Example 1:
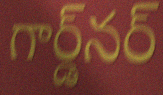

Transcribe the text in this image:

గార్డ్‌నర్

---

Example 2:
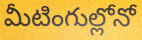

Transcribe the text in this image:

మీటింగుల్లోనో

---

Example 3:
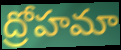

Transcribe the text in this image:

ద్రోహమా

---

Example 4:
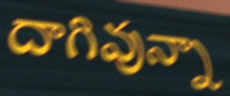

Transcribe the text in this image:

దాగివున్నా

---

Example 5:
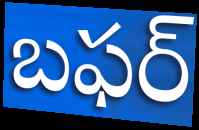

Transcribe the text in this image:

బఫర్